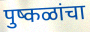
पुष्कळांचा